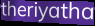
theriyatha